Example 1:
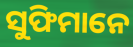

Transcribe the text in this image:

ସୁଫିମାନେ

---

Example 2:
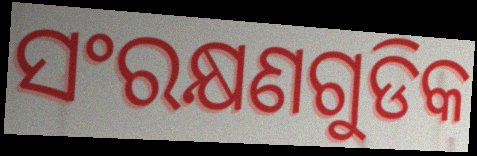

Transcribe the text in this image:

ସଂରକ୍ଷଣଗୁଡିକ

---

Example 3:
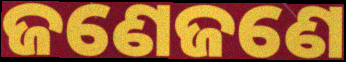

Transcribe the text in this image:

ଜଣେଜଣେ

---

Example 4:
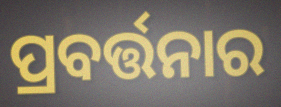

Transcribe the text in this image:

ପ୍ରବର୍ତ୍ତନାର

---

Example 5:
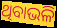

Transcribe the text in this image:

ଥିବାଭଳି